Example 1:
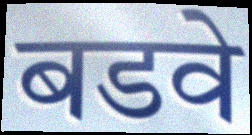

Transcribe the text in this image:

बडवे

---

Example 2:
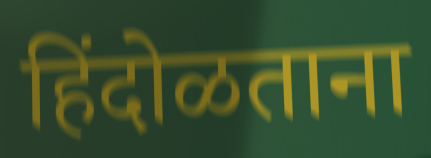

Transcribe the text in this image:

हिंदोळताना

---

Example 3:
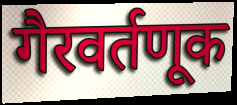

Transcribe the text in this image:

गैरवर्तणूक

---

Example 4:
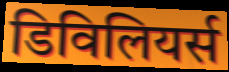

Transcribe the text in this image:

डिविलियर्स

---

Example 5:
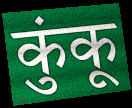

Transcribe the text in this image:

कुंकू